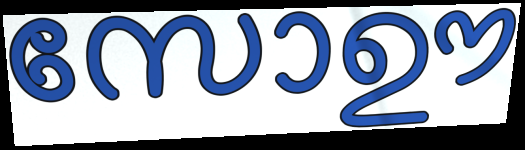
സോഊ